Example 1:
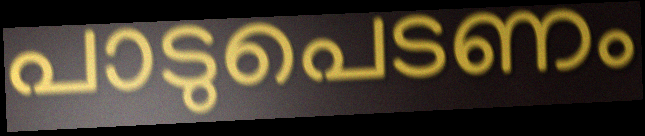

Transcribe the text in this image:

പാടുപെടണം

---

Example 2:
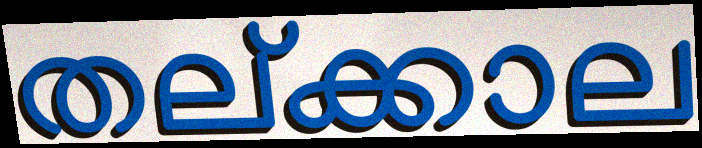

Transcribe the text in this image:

തല്ക്കാല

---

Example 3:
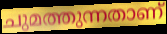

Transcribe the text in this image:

ചുമത്തുന്നതാണ്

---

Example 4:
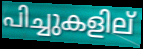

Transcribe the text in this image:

പിച്ചുകളില്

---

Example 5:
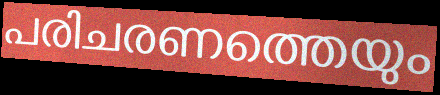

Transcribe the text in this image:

പരിചരണത്തെയും